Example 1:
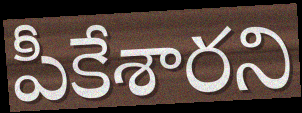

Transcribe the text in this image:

పీకేశారని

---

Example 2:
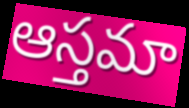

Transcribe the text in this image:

ఆస్తమా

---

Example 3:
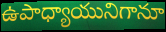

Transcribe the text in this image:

ఉపాధ్యాయునిగానూ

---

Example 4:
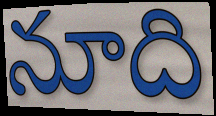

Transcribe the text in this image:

నూది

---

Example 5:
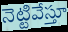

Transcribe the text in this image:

నెట్టివేస్తూ